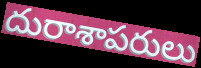
దురాశాపరులు